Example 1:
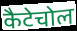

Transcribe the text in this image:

कैटेचोल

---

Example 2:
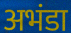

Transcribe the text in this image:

अभंडा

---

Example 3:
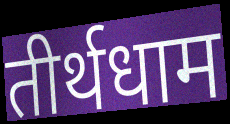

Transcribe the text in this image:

तीर्थधाम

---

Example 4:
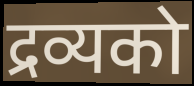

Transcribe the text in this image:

द्रव्यको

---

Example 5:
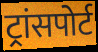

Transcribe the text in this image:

ट्रांसपोर्ट